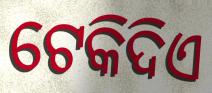
ଟେକିଦିଏ